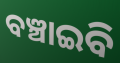
ବଞ୍ଚାଇବି